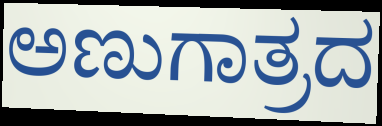
ಅಣುಗಾತ್ರದ